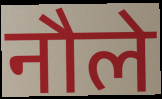
नौले